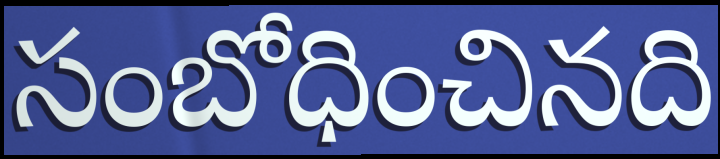
సంబోధించినది